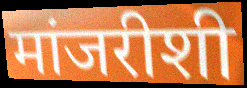
मांजरीशी